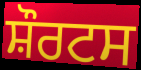
ਸ਼ੌਰਟਸ